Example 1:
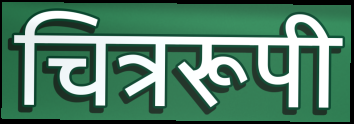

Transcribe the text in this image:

चित्ररूपी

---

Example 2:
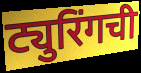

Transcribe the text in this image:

ट्युरिंगची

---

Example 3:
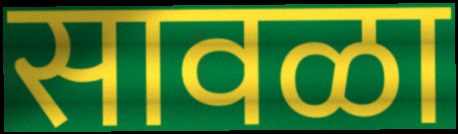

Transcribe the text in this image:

सावळा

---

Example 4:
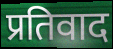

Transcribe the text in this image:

प्रतिवाद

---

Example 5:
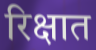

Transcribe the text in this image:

रिक्षात